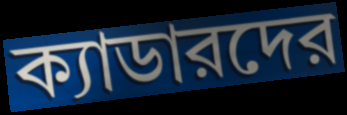
ক্যাডারদের